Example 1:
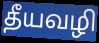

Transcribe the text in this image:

தீயவழி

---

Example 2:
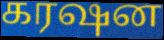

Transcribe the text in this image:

கரஷன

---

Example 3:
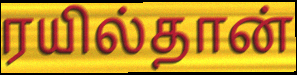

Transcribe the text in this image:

ரயில்தான்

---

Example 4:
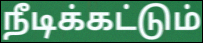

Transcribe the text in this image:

நீடிக்கட்டும்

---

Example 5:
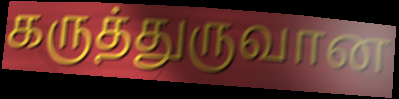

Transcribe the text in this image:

கருத்துருவான